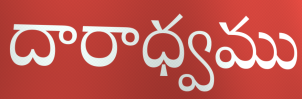
దారాధ్వము